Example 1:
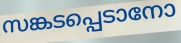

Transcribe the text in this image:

സങ്കടപ്പെടാനോ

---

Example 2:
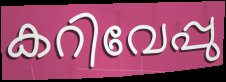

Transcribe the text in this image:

കറിവേപ്പു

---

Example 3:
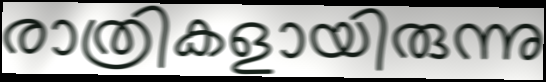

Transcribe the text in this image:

രാത്രികളായിരുന്നു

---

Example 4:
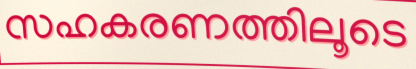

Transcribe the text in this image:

സഹകരണത്തിലൂടെ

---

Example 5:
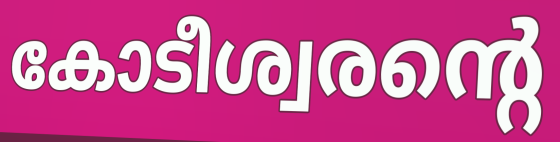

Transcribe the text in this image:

കോടീശ്വരന്റെ